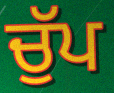
ਚੁੱਪ